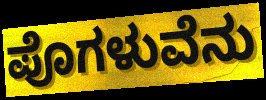
ಪೊಗಳುವೆನು